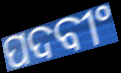
ପଦବୀଂ